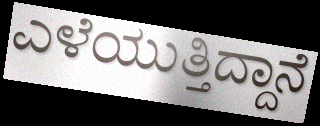
ಎಳೆಯುತ್ತಿದ್ದಾನೆ